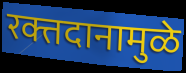
रक्तदानामुळे